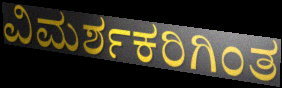
ವಿಮರ್ಶಕರಿಗಿಂತ